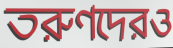
তরুণদেরও